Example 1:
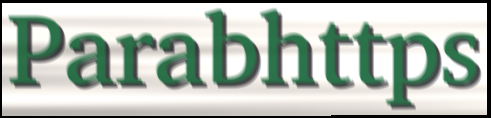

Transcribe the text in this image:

Parabhttps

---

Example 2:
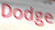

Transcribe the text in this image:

Dodge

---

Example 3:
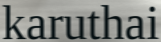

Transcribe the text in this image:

karuthai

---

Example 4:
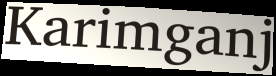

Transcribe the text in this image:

Karimganj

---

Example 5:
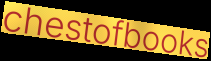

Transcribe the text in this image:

chestofbooks